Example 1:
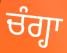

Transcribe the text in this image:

ਚੰਗ੍ਹਾ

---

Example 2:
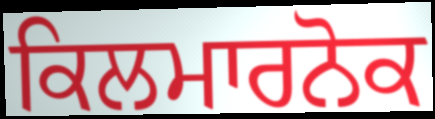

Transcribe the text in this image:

ਕਿਲਮਾਰਨੋਕ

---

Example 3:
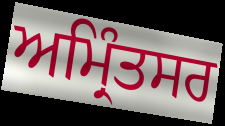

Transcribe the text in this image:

ਅਮ੍ਰਿੰਤਸਰ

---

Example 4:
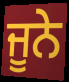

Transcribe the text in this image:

ਜੂਨੇ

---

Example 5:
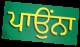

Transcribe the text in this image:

ਪਾਉਂਨਾ